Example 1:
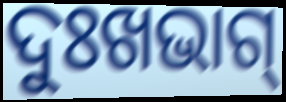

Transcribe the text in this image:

ଦୁଃଖଭାଗ୍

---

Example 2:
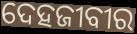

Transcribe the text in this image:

ଦେହଜୀବୀର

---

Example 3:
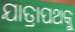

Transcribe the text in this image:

ଯାତ୍ରାପଥକୁ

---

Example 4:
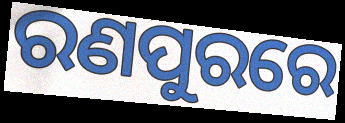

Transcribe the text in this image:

ରଣପୁରରେ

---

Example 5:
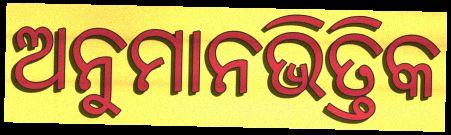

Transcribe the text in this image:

ଅନୁମାନଭିତ୍ତିକ